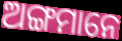
ଅଙ୍ଗମାନେ